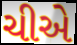
ચીએ